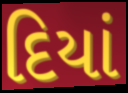
દિયાં